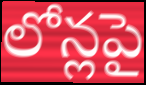
లోన్లపై